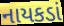
નાયકડાં